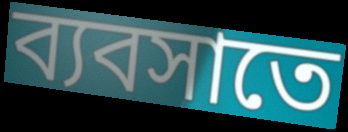
ব্যবসাতে